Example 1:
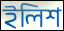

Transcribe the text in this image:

ইলিশ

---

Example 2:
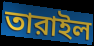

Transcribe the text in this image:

তারাইল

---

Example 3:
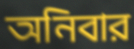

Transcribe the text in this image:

অনিবার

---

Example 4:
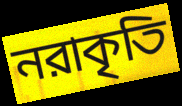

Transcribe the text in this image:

নরাকৃতি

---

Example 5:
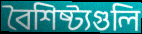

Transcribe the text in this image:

বৈশিষ্ট্যগুলি